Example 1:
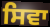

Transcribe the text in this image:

ਸਿਵਾ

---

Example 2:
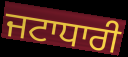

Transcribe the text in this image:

ਜਟਾਧਾਰੀ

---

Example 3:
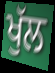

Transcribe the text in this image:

ਖੁੱਲ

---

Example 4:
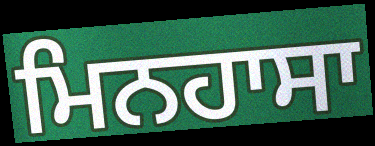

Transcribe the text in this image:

ਮਿਨਹਾਸਾ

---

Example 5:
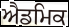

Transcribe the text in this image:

ਐਡਮਿਕ